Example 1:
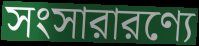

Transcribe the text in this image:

সংসারারণ্যে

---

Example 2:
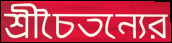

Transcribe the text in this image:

শ্রীচৈতন্যের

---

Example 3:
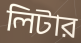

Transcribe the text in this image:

লিটার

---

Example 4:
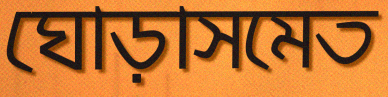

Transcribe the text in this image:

ঘোড়াসমেত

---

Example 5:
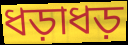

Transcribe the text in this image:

ধড়াধড়